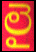
లై